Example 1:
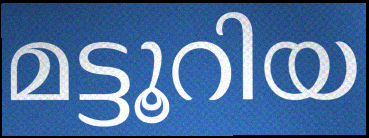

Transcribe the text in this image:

മട്ടൂറിയ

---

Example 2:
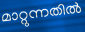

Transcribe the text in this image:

മാറ്റുന്നതിൽ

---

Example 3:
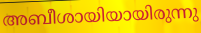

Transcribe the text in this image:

അബീശായിയായിരുന്നു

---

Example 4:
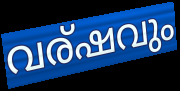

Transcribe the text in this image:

വര്ഷവും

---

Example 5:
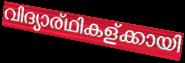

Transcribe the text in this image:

വിദ്യാര്ഥികള്ക്കായി